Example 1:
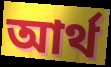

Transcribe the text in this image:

আৰ্থ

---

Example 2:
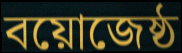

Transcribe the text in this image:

বয়োজেষ্ঠ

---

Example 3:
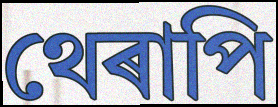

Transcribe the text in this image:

থেৰাপি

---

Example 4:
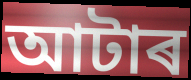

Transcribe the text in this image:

আটাৰ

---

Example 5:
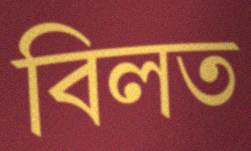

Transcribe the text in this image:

বিলত